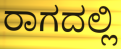
ರಾಗದಲ್ಲಿ